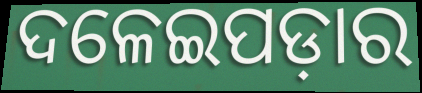
ଦଳେଇପଡ଼ାର